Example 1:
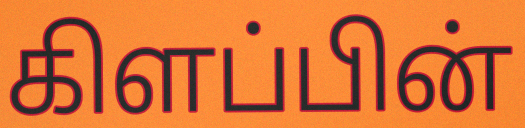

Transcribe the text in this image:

கிளப்பின்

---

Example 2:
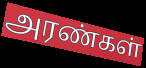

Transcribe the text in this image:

அரண்கள்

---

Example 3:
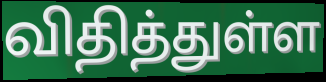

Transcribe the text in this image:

விதித்துள்ள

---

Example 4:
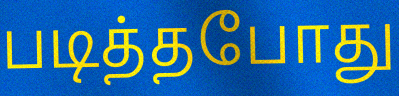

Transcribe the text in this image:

படித்தபோது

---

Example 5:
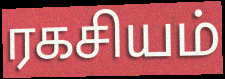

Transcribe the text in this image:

ரகசியம்